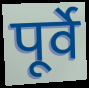
पूर्वे